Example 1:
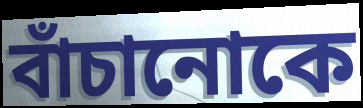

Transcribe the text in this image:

বাঁচানোকে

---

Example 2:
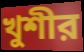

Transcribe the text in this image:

খুশীর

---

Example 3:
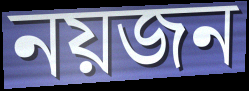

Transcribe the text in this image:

নয়জন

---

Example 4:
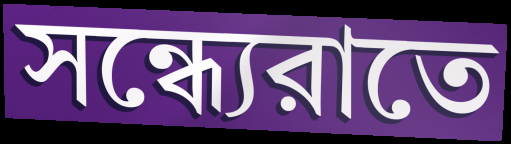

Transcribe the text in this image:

সন্ধ্যেরাতে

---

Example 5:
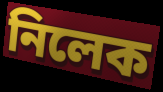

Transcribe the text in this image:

নিলেক